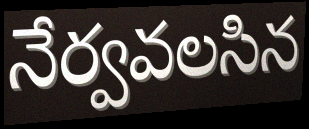
నేర్వవలసిన